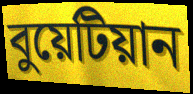
বুয়েটিয়ান